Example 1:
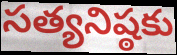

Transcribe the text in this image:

సత్యనిష్ఠకు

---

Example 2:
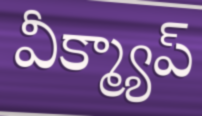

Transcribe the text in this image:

వీక్మ్యాప్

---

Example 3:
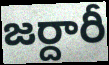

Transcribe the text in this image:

జర్దారీ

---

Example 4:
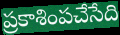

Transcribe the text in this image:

ప్రకాశింపచేసేది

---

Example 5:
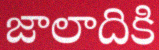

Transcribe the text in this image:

జాలాదికి